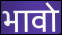
भावो